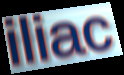
iliac